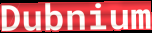
Dubnium